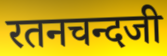
रतनचन्दजी